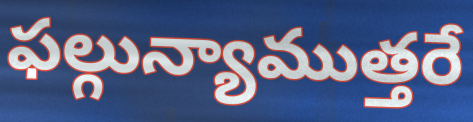
ఫల్గున్యాముత్తరే